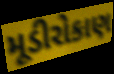
મૂડીરોકાણ